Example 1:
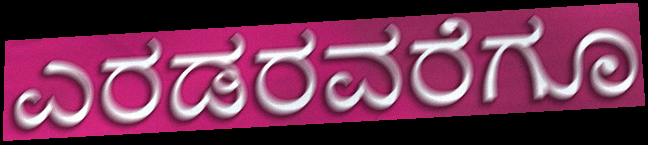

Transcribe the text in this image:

ಎರಡರವರೆಗೂ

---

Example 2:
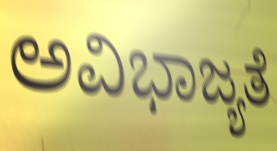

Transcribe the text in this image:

ಅವಿಭಾಜ್ಯತೆ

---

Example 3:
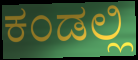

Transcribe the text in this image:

ಕಂಡಲ್ಲಿ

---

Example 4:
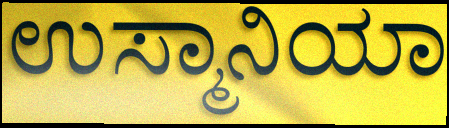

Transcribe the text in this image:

ಉಸ್ಮಾನಿಯಾ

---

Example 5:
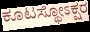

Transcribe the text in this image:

ಕೂಟಸ್ಥೋಽಕ್ಷರ